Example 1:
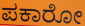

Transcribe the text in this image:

ಪಕಾರೋ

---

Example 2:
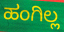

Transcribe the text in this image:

ಹಂಗಿಲ್ಲ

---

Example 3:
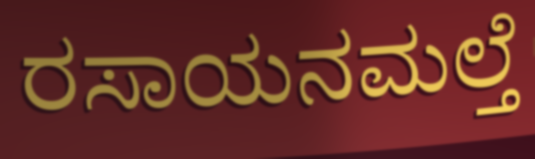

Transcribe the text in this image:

ರಸಾಯನಮಲ್ತೆ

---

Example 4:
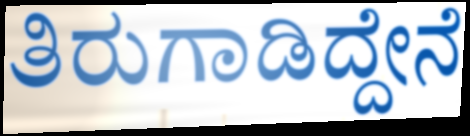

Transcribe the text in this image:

ತಿರುಗಾಡಿದ್ದೇನೆ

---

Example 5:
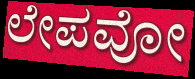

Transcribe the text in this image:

ಲೇಪವೋ